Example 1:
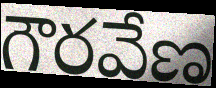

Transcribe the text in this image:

గౌరవేణ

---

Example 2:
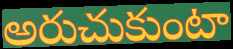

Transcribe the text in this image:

అరుచుకుంటా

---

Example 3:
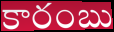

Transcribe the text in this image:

కారంబు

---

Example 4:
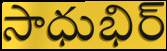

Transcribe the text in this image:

సాధుభిర్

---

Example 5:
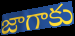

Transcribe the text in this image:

జాగాకు